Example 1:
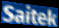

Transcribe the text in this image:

Saitek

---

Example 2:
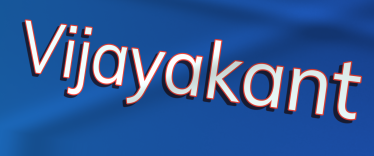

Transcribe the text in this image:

Vijayakant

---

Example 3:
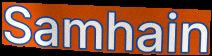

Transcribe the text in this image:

Samhain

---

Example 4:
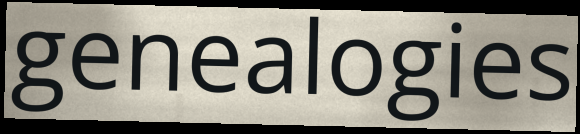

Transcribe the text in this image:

genealogies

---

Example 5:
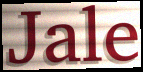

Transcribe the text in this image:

Jale